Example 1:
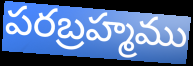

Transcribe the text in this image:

పరబ్రహ్మము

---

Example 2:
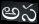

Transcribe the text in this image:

అస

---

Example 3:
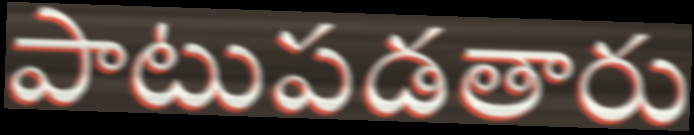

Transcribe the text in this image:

పాటుపడతారు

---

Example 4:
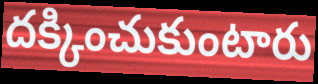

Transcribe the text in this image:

దక్కించుకుంటారు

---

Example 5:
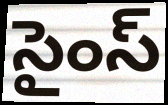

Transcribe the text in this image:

సైంస్